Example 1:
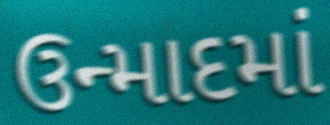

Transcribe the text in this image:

ઉન્માદમાં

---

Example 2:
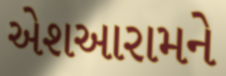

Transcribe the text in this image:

એશઆરામને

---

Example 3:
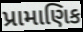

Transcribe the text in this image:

પ્રામાણિક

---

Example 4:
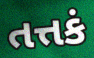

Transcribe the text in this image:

તત્તકં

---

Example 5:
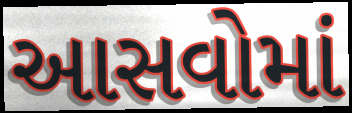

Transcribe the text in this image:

આસવોમાં